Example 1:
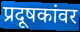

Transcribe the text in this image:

प्रदूषकांवर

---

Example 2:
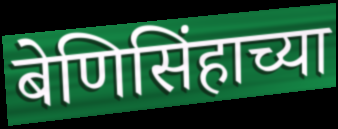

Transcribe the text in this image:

बेणिसिंहाच्या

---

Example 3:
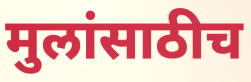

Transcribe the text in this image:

मुलांसाठीच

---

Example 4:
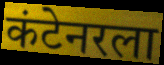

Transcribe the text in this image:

कंटेनरला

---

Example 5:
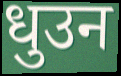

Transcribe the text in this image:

धुउन